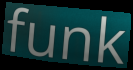
funk